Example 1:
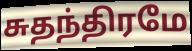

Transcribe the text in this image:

சுதந்திரமே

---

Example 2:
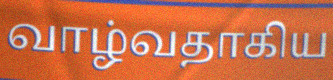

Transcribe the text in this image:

வாழ்வதாகிய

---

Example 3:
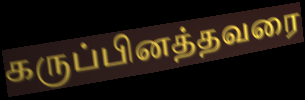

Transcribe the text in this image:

கருப்பினத்தவரை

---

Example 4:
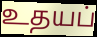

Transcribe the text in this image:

உதயப்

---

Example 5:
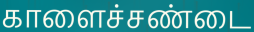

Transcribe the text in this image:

காளைச்சண்டை